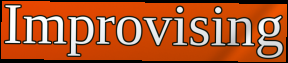
Improvising